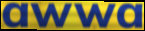
awwa